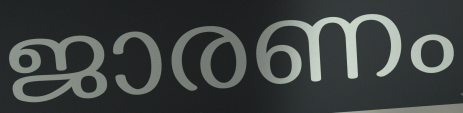
ജാരണം